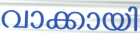
വാക്കായി